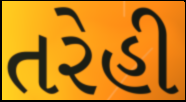
તરેહી